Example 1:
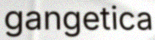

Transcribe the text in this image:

gangetica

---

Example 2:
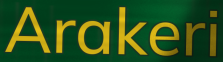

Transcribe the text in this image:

Arakeri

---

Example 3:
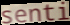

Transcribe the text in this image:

senti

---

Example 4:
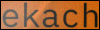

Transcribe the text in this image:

ekach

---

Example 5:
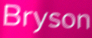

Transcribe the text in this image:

Bryson